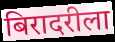
बिरादरीला